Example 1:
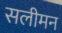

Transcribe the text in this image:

सलीमन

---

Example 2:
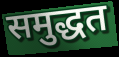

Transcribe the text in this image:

समुद्धत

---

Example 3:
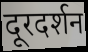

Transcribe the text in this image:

दूरदर्शन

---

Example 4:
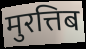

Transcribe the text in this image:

मुरत्तिब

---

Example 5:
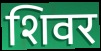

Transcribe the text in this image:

शिवर